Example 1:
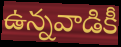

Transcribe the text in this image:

ఉన్నవాడికీ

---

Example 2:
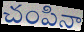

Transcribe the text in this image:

చంపినా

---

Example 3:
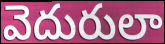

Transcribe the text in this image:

వెదురులా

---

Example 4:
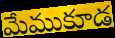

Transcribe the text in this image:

మేముకూడ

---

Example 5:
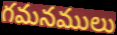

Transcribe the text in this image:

గమనములు